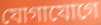
যোগাযোগে